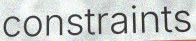
constraints